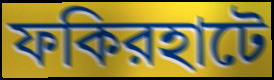
ফকিরহাটে